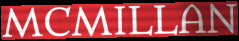
MCMILLAN